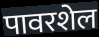
पावरशेल